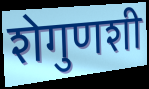
शेगुणशी